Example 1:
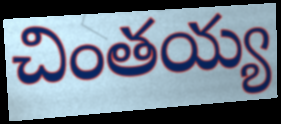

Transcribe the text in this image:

చింతయ్య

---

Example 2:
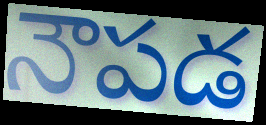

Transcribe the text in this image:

నౌపడ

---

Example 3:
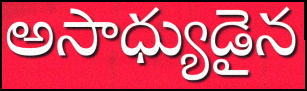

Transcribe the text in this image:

అసాధ్యుడైన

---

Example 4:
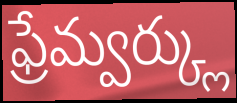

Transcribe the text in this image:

ఫ్రేమ్వర్క్లు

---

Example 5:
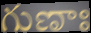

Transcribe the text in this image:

గుణాః